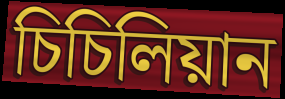
চিচিলিয়ান